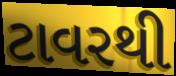
ટાવરથી